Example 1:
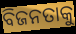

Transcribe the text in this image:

ବିଜନତାକୁ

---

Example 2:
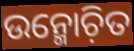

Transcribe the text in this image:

ଉନ୍ମୋଚ଼ିତ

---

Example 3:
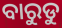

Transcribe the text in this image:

ବାରୁଡୁ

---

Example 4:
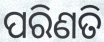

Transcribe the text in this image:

ପରିଣତି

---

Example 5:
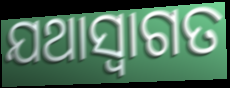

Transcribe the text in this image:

ଯଥାସ୍ଵାଗତ